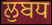
ਲੁਬਧ